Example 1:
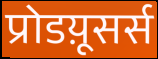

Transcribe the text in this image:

प्रोडय़ूसर्स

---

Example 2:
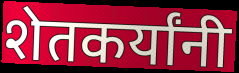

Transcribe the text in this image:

शेतकर्यांनी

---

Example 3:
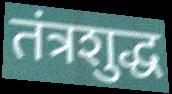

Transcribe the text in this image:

तंत्रशुद्ध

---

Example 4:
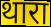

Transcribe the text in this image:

थारा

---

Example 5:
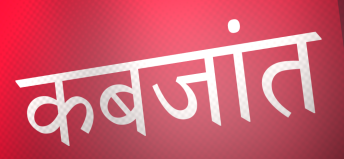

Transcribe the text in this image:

कबजांत